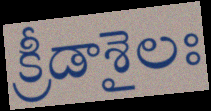
క్రీడాశైలః